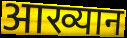
आख्यान